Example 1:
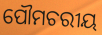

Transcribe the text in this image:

ପୌମଚରୀୟ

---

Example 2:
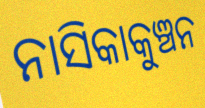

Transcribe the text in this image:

ନାସିକାକୁଞ୍ଚନ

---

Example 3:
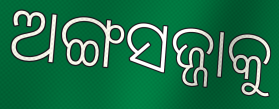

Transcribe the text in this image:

ଅଙ୍ଗସଜ୍ଜାକୁ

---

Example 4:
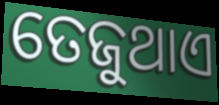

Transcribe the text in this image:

ତେଜୁଥାଏ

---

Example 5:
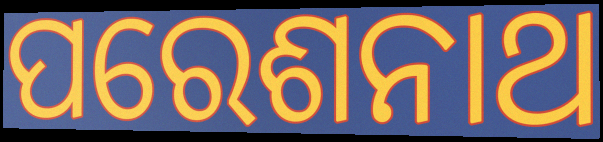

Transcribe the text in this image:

ପରେଶନାଥ